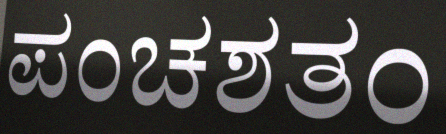
ಪಂಚಶತಂ